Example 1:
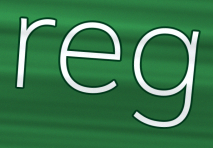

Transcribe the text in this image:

reg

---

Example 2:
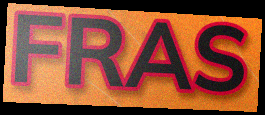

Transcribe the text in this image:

FRAS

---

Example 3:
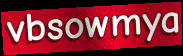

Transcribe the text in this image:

vbsowmya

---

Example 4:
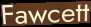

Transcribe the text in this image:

Fawcett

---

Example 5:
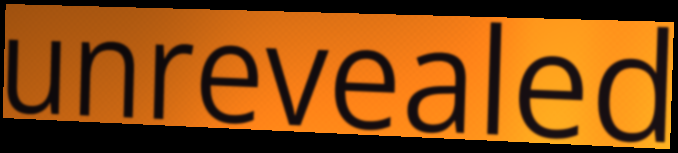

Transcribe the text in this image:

unrevealed